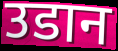
उडान